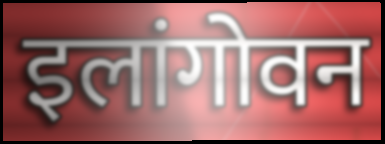
इलांगोवन